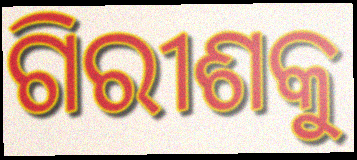
ଗିରୀଶକୁ